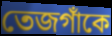
তেজগাঁকে